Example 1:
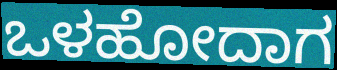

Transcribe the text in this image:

ಒಳಹೋದಾಗ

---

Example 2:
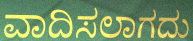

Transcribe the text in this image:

ವಾದಿಸಲಾಗದು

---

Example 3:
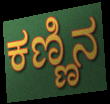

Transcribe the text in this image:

ಕಣ್ಣಿನ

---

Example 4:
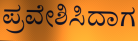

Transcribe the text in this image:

ಪ್ರವೇಶಿಸಿದಾಗ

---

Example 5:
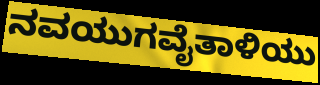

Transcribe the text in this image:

ನವಯುಗವೈತಾಳಿಯು